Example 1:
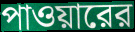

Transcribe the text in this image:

পাওয়ারের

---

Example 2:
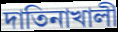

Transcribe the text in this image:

দাতিনাখালী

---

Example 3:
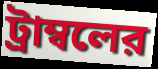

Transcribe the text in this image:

ট্রাম্বলের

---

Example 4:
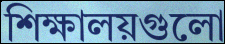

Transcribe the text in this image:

শিক্ষালয়গুলো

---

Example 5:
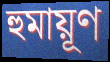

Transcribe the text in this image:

হুমায়ূণ